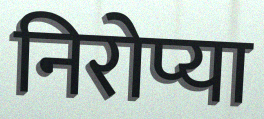
निरोप्या